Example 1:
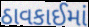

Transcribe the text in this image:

ઠાવકાઈમાં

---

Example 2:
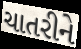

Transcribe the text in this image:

ચાતરીને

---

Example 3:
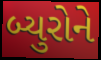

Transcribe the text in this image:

બ્યુરોને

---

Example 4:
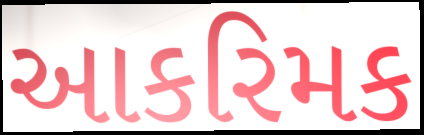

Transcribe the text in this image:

આકરિમક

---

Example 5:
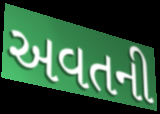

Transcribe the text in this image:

અવતની